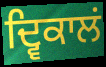
ਦ੍ਵਿਕਾਲਂ